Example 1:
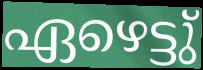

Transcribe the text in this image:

ഏഴെട്ടു്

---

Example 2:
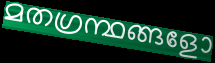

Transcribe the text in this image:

മതഗ്രന്ഥങ്ങളോ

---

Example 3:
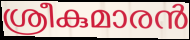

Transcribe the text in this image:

ശ്രീകുമാരൻ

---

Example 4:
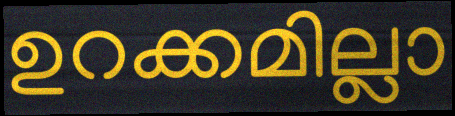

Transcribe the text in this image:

ഉറക്കമില്ലാ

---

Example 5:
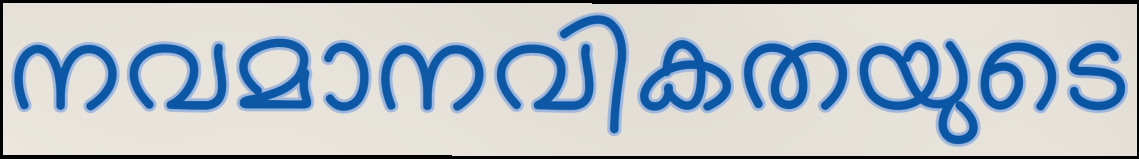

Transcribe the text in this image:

നവമാനവികതയുടെ